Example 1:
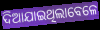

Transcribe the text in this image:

ଦିଆଯାଇଥିଲାବେଳେ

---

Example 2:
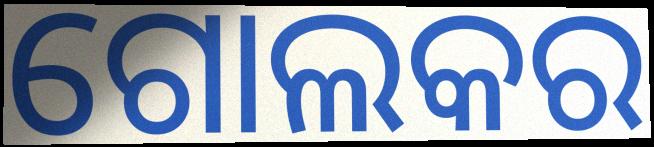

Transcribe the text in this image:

ଗୋଲକର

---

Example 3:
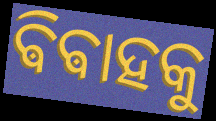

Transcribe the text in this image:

ଵିଵାହକୁ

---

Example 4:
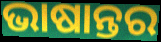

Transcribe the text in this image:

ଭାଷାନ୍ତର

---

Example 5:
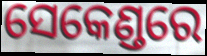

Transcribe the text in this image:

ସେକେଣ୍ଡରେ